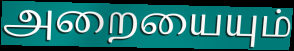
அறையையும்